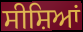
ਸੀਸ਼ਿਆਂ